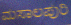
ಮಸಾಲಪುರಿ